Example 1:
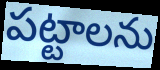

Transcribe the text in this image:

పట్టాలను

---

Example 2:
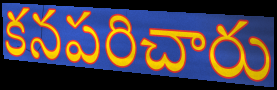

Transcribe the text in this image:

కనపరిచారు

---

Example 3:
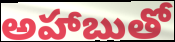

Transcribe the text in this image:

అహాబుతో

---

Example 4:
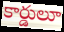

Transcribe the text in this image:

కార్డులూ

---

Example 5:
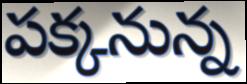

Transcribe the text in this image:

పక్కనున్న